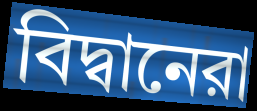
বিদ্বানেরা